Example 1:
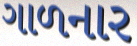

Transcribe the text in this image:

ગાળનાર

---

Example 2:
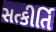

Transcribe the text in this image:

સત્કીર્તિ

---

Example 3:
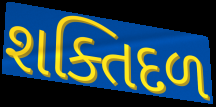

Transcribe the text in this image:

શક્તિદળ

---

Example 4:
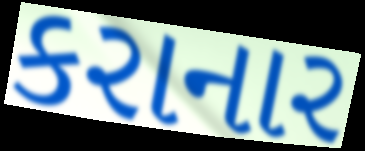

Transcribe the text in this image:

કરાનાર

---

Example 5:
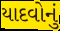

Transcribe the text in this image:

યાદવોનું